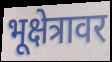
भूक्षेत्रावर